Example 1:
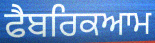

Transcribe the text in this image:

ਫੈਬਰਿਕਆਮ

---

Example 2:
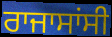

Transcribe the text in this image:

ਰਾਜਾਸਾਂਸੀ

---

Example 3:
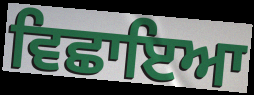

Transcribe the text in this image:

ਵਿਛਾਇਆ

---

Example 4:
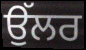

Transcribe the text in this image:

ਉੱਲਰ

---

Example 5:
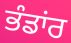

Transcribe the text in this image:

ਭੰਡਾਂਰ